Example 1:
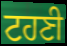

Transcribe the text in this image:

ਟਹਣੀ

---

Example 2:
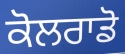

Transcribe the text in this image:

ਕੋਲਰਾਡੋ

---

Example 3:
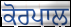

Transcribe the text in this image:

ਕੋਰਪਾਲ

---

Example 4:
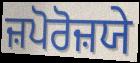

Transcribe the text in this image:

ਜ਼ਪੋਰੋਜ਼ਯੇ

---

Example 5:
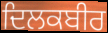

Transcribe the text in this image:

ਦਿਲਕਬੀਰ